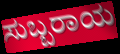
ಸುಬ್ಬರಾಯ